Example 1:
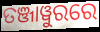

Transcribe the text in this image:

ତଞ୍ଜାୱୁରରେ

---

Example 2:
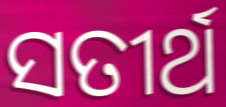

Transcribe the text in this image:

ସତୀର୍ଥ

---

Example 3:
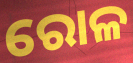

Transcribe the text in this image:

ରୋଳ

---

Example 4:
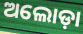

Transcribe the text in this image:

ଅଲୋଡ଼ା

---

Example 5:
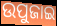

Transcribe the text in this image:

ଉପୁଜାଇ